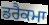
ਡਰੈਕਮਾ